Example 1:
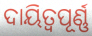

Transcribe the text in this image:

ଦାୟିତ୍ବପୂର୍ଣ୍ଣ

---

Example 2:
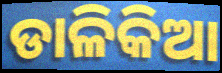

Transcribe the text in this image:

ଡାଳିକିଆ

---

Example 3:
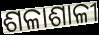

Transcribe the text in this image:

ଶଳାଶାଳୀ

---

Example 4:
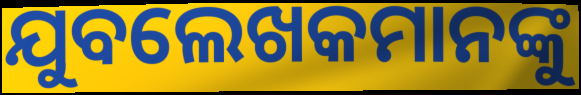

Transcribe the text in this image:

ଯୁବଲେଖକମାନଙ୍କୁ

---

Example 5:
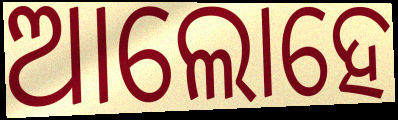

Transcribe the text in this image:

ଆଲୋହେ